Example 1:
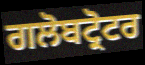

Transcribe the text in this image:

ਗਲੋਬਟ੍ਰੋਟਰ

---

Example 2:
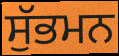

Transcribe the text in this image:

ਸੁੱਭਮਨ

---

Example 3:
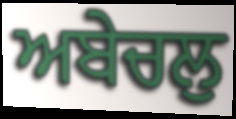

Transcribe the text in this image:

ਅਬੇਚਲੁ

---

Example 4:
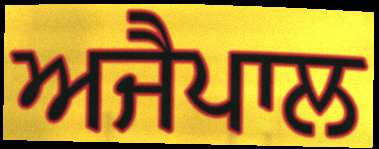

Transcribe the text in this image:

ਅਜੈਪਾਲ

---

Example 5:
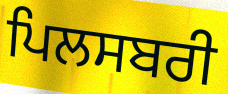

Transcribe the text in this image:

ਪਿਲਸਬਰੀ